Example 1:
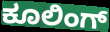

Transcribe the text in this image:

ಕೂಲಿಂಗ್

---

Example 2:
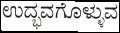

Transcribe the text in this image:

ಉದ್ಭವಗೊಳ್ಳುವ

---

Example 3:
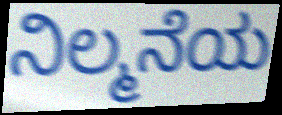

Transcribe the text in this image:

ನಿಲ್ಮನೆಯ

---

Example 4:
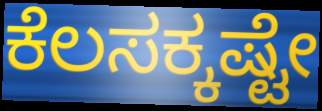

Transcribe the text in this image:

ಕೆಲಸಕ್ಕಷ್ಟೇ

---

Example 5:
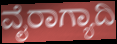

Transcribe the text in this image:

ವೈರಾಗ್ಯಾದಿ